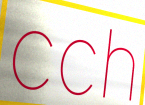
cch